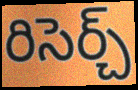
రిసెర్చ్